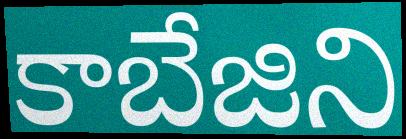
కాబేజిని